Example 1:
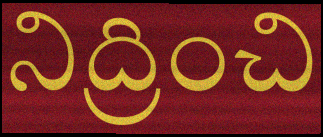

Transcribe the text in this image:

నిద్రించి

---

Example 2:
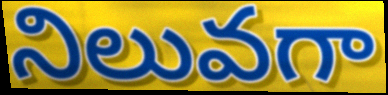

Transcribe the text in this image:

నిలువగా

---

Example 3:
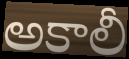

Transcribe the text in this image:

అకాలీ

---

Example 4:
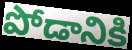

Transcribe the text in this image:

పోడానికి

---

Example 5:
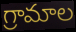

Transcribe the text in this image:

గ్రామాల